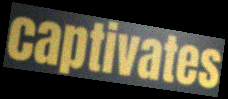
captivates